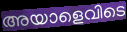
അയാളെവിടെ